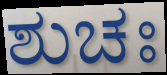
ಶುಚಃ